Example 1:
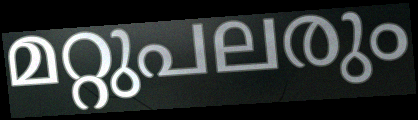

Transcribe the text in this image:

മറ്റുപലരും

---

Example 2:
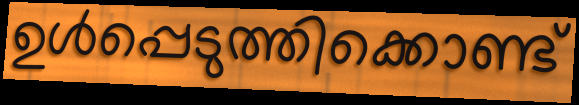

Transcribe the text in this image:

ഉൾപ്പെടുത്തിക്കൊണ്ട്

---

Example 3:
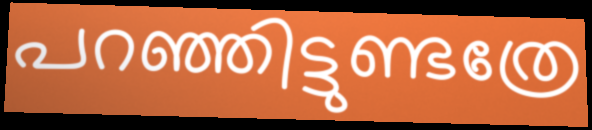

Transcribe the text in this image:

പറഞ്ഞിട്ടുണ്ടത്രേ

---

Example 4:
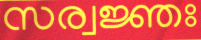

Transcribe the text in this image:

സര്വജ്ഞഃ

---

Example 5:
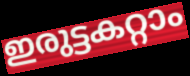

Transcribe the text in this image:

ഇരുട്ടകറ്റാം